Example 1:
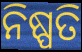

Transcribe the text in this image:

ନିଷ୍ପତି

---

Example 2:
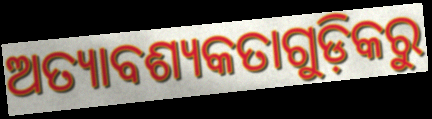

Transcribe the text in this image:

ଅତ୍ୟାବଶ୍ୟକତାଗୁଡ଼ିକରୁ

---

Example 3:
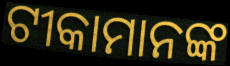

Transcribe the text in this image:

ଟୀକାମାନଙ୍କ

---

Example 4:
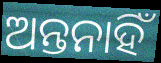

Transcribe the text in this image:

ଅନ୍ତନାହିଁ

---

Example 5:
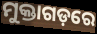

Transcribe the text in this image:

ମୁକ୍ତାଗଡ଼ରେ